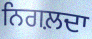
ਨਿਗਲ਼ਦਾ